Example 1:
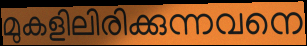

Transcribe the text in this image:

മുകളിലിരിക്കുന്നവനെ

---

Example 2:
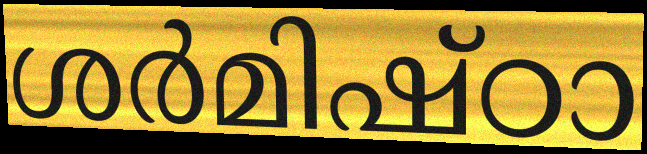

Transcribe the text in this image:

ശർമിഷ്ഠാ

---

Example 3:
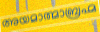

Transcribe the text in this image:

അയമാത്മാബ്രഹ്മ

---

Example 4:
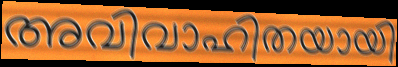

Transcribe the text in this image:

അവിവാഹിതയായി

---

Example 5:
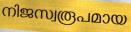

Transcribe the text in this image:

നിജസ്വരൂപമായ